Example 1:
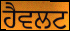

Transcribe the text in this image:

ਹੈਵਲਟ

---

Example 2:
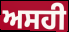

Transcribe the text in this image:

ਅਸਹੀ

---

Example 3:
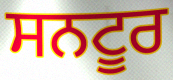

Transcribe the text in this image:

ਸਨਟੂਰ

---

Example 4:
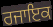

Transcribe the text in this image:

ਰਜਾਇਕ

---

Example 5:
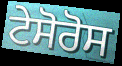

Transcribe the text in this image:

ਟੇਸੋਰੋਸ